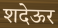
शदेऊर